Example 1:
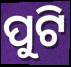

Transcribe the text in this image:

ପୁଟି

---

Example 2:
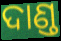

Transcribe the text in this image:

ଦାଣ୍ଡ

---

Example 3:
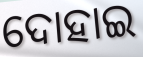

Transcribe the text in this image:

ଦୋହାଇ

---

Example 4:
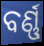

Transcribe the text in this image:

ବର୍ଣ୍ଣ୍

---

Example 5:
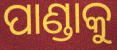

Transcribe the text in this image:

ପାଣ୍ଡାକୁ